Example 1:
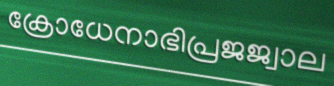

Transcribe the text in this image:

ക്രോധേനാഭിപ്രജജ്വാല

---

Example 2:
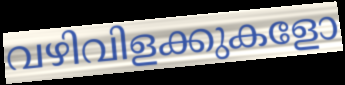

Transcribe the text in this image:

വഴിവിളക്കുകളോ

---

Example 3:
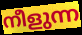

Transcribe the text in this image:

നീളുന്ന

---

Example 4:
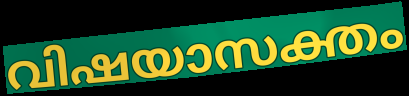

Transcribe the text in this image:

വിഷയാസക്തം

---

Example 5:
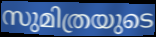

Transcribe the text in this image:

സുമിത്രയുടെ